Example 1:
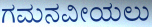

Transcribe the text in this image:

ಗಮನವೀಯಲು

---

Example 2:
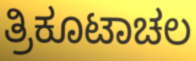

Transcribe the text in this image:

ತ್ರಿಕೂಟಾಚಲ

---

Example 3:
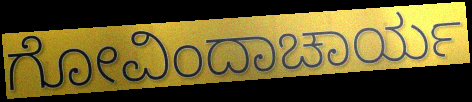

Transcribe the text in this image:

ಗೋವಿಂದಾಚಾರ್ಯ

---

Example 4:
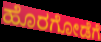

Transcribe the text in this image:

ಹೊರಗೋಡೆಗೆ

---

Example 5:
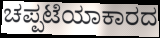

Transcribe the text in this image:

ಚಪ್ಪಟೆಯಾಕಾರದ